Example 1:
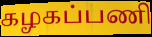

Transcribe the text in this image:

கழகப்பணி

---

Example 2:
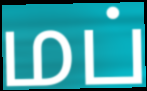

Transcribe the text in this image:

மப்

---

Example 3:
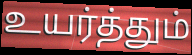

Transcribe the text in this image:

உயர்த்தும்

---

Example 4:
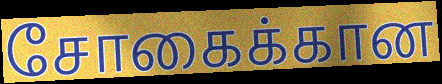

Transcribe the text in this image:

சோகைக்கான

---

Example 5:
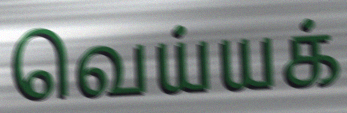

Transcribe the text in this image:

வெய்யக்